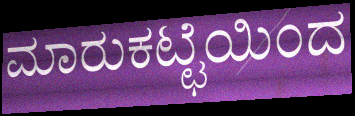
ಮಾರುಕಟ್ಟೆಯಿಂದ